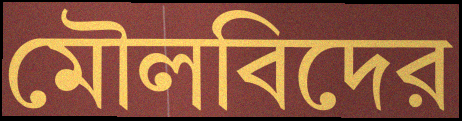
মৌলবিদের